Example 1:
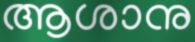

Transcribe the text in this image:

ആശാനു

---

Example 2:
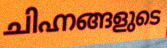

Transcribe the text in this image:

ചിഹ്നങ്ങളുടെ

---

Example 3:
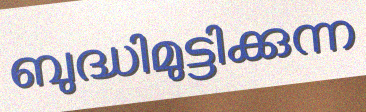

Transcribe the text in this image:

ബുദ്ധിമുട്ടിക്കുന്ന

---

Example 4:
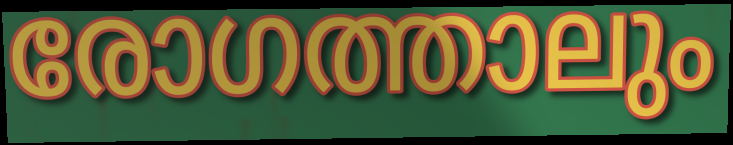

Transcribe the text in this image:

രോഗത്താലും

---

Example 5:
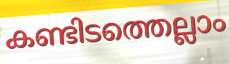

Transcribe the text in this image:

കണ്ടിടത്തെല്ലാം